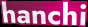
hanchi